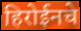
हिरोईनचे